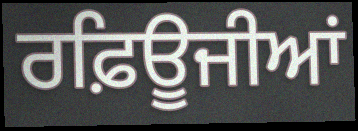
ਰਫ਼ਿਊਜੀਆਂ